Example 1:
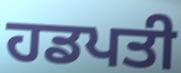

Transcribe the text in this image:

ਹਡਪਤੀ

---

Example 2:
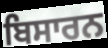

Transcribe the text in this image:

ਬਿਸਾਰਨ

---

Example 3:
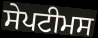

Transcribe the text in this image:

ਸੇਪਟੀਮਸ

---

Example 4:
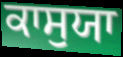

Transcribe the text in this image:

ਕਾਸੁਯਾ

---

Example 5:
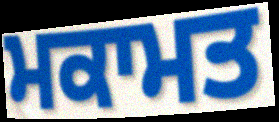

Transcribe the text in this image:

ਮਕਾਮਤ